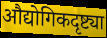
औद्योगिकदृष्ट्या